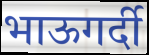
भाऊगर्दी